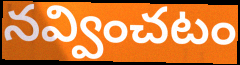
నవ్వించటం